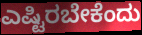
ಎಷ್ಟಿರಬೇಕೆಂದು